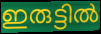
ഇരുട്ടിൽ